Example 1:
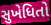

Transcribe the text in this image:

સુખેધિતો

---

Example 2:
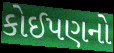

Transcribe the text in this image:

કોઈપણનો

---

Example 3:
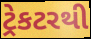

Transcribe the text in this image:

ટ્રેકટરથી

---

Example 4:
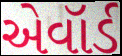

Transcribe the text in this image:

એવૉર્ડ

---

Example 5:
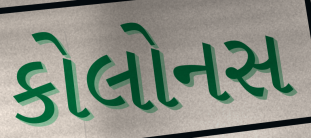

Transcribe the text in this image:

કોલોનસ